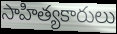
సాహిత్యకారులు